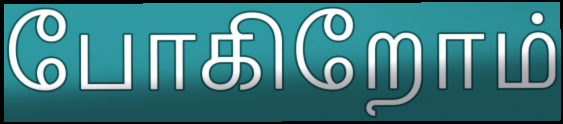
போகிறோம்